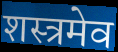
शस्त्रमेव